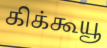
கிக்கூயூ